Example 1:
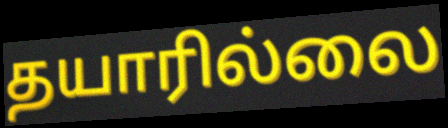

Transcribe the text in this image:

தயாரில்லை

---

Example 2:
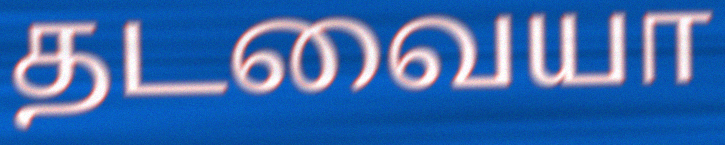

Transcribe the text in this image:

தடவையா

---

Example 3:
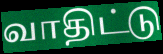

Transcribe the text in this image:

வாதிட்டு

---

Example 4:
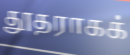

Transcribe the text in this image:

தூதராகக்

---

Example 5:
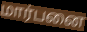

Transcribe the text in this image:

மார்பனை